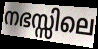
നഭസ്സിലെ